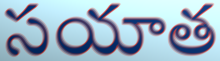
సయాత